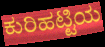
ಕುರಿಹಟ್ಟಿಯ